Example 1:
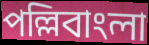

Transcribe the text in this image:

পল্লিবাংলা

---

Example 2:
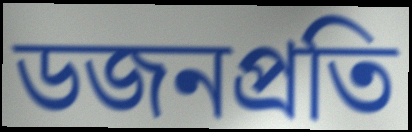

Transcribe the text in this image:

ডজনপ্রতি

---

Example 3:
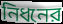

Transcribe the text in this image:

নিধনের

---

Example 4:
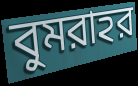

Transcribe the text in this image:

বুমরাহর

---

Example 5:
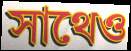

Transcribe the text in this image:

সাথেও